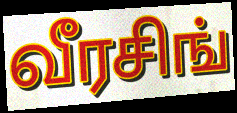
வீரசிங்